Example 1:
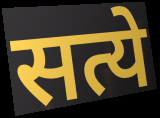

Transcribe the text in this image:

सत्ये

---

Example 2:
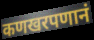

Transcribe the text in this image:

कणखरपणानं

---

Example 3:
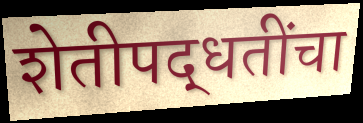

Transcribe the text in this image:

शेतीपद्धतींचा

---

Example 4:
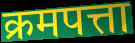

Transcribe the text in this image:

क्रमपत्ता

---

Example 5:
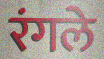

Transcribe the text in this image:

रंगले